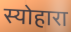
स्योहारा